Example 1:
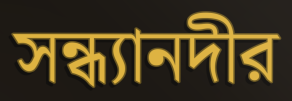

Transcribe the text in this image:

সন্ধ্যানদীর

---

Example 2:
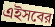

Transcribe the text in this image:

এইসবের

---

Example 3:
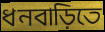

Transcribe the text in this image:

ধনবাড়িতে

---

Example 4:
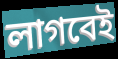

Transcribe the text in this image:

লাগবেই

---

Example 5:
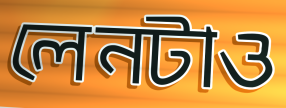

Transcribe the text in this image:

লেনটাও